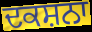
ਦਕਸ਼ਨਾ